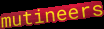
mutineers